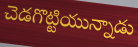
చెడగొట్టియున్నాడు